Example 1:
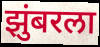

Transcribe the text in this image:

झुंबरला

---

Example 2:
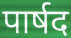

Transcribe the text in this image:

पार्षद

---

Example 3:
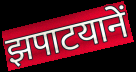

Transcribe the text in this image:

झपाटयानें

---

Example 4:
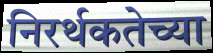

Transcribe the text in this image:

निरर्थकतेच्या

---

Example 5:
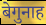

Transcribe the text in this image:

बेगुनाह